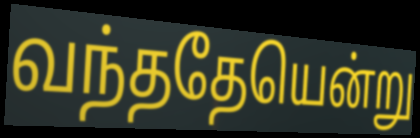
வந்ததேயென்று